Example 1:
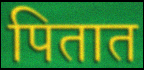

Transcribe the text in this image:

पितात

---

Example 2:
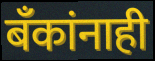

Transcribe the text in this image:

बँकांनाही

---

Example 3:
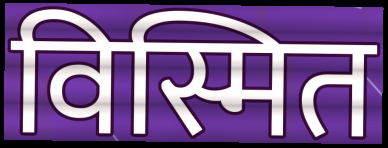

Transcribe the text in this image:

विस्मित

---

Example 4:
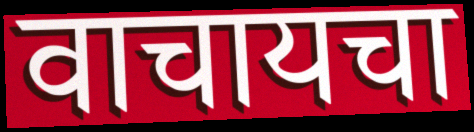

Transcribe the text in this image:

वाचायचा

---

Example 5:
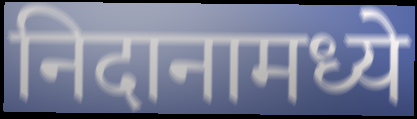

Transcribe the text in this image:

निदानामध्ये